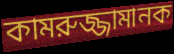
কামৰুজ্জামানক